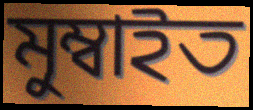
মুম্বাইত